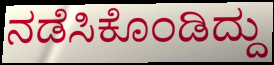
ನಡೆಸಿಕೊಂಡಿದ್ದು